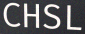
CHSL